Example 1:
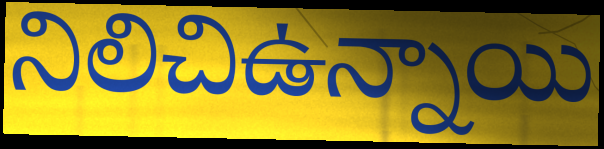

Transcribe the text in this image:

నిలిచిఉన్నాయి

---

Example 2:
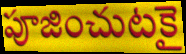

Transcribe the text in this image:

పూజించుటకై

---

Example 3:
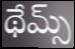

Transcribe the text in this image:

థేమ్స్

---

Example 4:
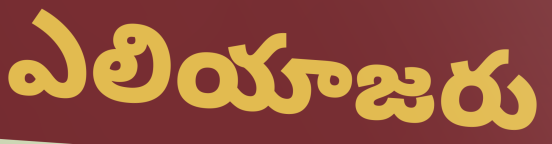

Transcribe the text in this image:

ఎలియాజరు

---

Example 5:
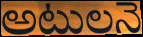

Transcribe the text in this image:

అటులనె